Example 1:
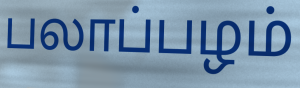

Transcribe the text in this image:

பலாப்பழம்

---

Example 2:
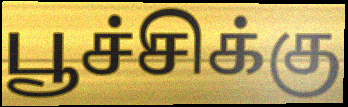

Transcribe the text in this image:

பூச்சிக்கு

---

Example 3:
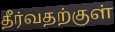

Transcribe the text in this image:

தீர்வதற்குள்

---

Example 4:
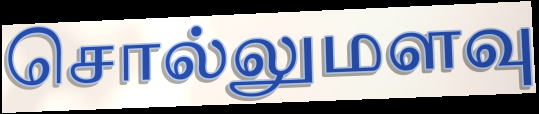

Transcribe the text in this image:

சொல்லுமளவு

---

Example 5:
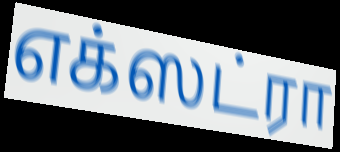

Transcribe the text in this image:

எக்ஸட்ரா